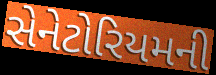
સેનેટોરિયમની